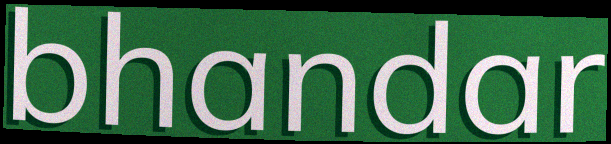
bhandar